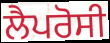
ਲੈਪਰੋਸੀ